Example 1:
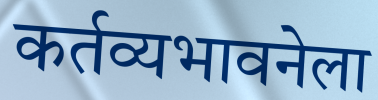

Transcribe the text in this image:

कर्तव्यभावनेला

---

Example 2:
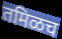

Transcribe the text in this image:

तमिळच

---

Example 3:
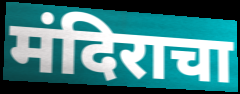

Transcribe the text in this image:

मंदिराचा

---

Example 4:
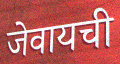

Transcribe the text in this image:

जेवायची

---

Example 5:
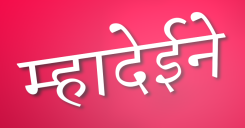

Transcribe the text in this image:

म्हादेईने